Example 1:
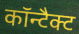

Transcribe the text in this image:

कॉन्टैक्ट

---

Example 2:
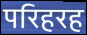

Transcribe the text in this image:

परिहरह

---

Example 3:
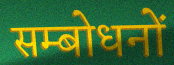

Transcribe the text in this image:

सम्बोधनों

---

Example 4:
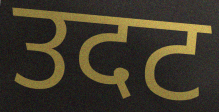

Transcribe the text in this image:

उदट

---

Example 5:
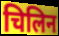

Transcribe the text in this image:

चिलिन